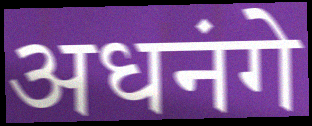
अधनंगे